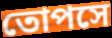
তোপসে